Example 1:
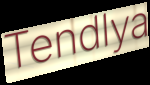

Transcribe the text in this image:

Tendlya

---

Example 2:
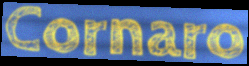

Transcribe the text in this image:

Cornaro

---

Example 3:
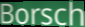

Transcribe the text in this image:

Borsch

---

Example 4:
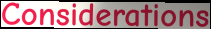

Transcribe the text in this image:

Considerations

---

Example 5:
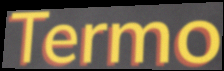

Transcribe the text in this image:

Termo